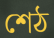
শেঠ